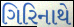
ગિરિનાથે